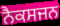
ਨੈਕਸਜਨ